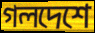
গলদেশে